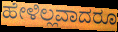
ಹೇಳಿಲ್ಲವಾದರೂ